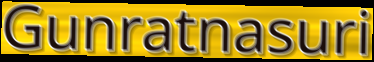
Gunratnasuri